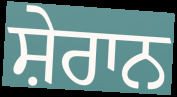
ਸ਼ੇਰਾਨ